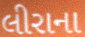
લીરાના